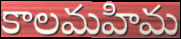
కాలమహిమ